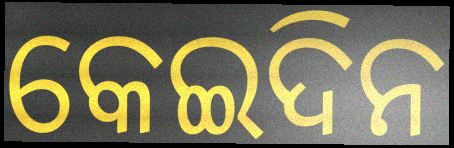
କେଇଦିନ